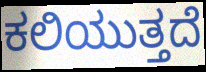
ಕಲಿಯುತ್ತದೆ